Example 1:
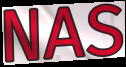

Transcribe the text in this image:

NAS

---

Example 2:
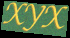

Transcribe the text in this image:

XYX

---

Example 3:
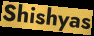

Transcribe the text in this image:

Shishyas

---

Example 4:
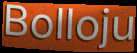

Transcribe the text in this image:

Bolloju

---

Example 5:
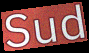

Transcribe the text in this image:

Sud